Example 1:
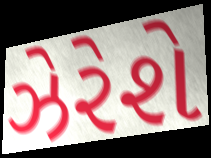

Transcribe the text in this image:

ઝેરેશે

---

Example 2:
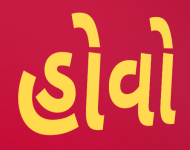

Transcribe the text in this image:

હોવો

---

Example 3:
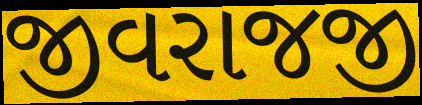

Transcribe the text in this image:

જીવરાજજી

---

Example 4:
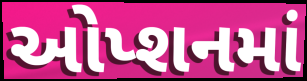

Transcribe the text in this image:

ઓપ્શનમાં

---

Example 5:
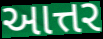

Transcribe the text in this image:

આત્તર